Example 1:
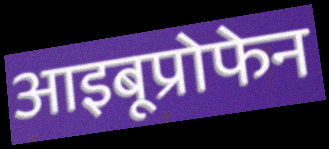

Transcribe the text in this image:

आइबूप्रोफेन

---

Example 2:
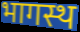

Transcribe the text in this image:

भागस्थ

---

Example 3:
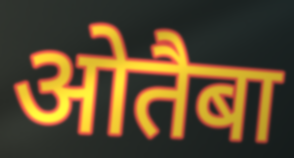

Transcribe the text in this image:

ओतैबा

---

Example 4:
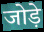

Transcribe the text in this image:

जोड़े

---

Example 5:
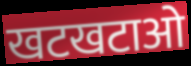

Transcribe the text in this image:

खटखटाओ